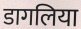
डागलिया